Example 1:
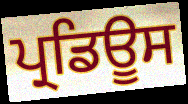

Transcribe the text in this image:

ਪ੍ਰਡਿਊਸ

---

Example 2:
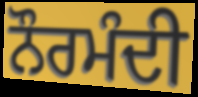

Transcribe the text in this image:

ਨੌਰਮੰਦੀ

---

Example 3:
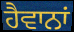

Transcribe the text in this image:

ਹੈਵਾਨਾਂ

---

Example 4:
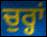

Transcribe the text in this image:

ਚੁਰ੍ਹਾਂ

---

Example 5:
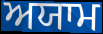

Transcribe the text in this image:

ਅਯਾਮ